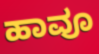
ಹಾವೂ